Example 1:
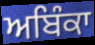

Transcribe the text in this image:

ਅਬਿੰਕਾ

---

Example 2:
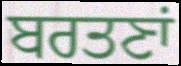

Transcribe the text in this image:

ਬਰਤਣਾਂ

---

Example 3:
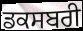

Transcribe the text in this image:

ਡਕਸਬਰੀ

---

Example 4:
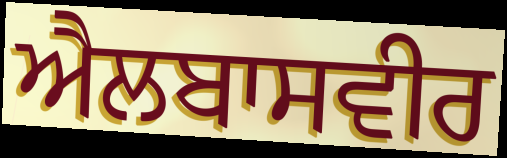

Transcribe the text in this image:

ਐਲਬਾਸਵੀਰ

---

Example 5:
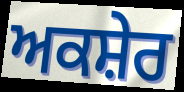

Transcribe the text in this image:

ਅਕਸ਼ੇਰ